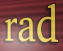
rad